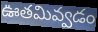
ఊతమివ్వడం